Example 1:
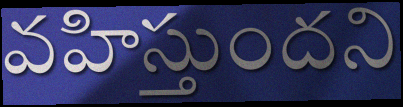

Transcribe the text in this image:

వహిస్తుందని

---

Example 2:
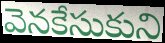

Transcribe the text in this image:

వెనకేసుకుని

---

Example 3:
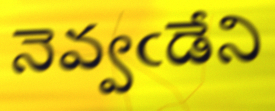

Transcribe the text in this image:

నెవ్వఁడేని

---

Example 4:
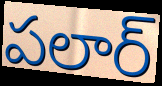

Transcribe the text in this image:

పలార్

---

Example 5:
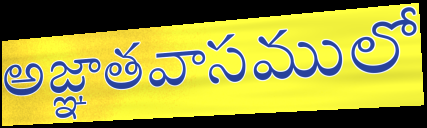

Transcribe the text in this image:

అజ్ఞాతవాసములో